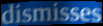
dismisses